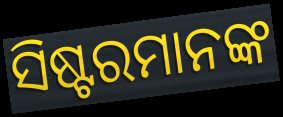
ସିଷ୍ଟରମାନଙ୍କ